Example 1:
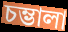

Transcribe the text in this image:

চম্ভালা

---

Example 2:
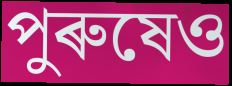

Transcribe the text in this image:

পুৰুষেও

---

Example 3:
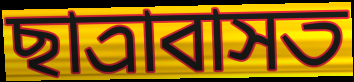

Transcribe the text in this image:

ছাত্ৰাবাসত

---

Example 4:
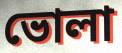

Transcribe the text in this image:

ভোলা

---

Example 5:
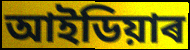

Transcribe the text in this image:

আইডিয়াৰ